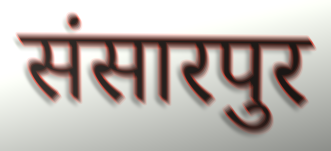
संसारपुर